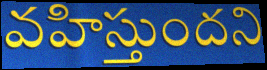
వహిస్తుందని